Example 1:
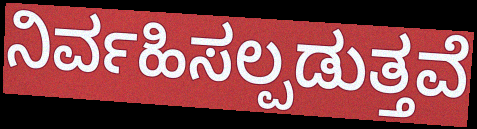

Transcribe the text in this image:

ನಿರ್ವಹಿಸಲ್ಪಡುತ್ತವೆ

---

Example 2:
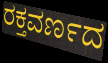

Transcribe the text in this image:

ರಕ್ತವರ್ಣದ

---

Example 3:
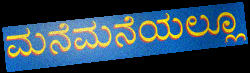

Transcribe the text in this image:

ಮನೆಮನೆಯಲ್ಲೂ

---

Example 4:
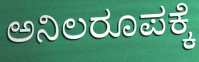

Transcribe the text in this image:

ಅನಿಲರೂಪಕ್ಕೆ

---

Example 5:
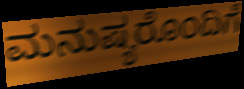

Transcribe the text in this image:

ಮನುಷ್ಯರೊಂದಿಗೆ